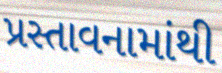
પ્રસ્તાવનામાંથી